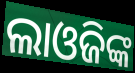
ଲାଓଜିଙ୍କ